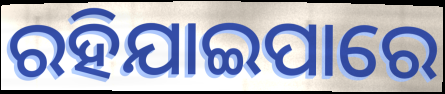
ରହିଯାଇପାରେ